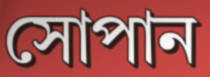
সোপান